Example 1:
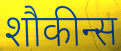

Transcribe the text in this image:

शौकीन्स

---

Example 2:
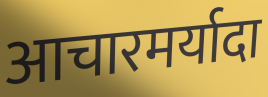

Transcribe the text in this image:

आचारमर्यादा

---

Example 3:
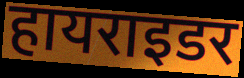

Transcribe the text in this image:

हायराइडर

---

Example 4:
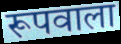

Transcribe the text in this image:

रूपवाला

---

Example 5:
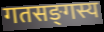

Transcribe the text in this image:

गतसङ्गस्य